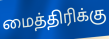
மைத்திரிக்கு